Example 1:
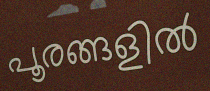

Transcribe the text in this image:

പൂരങ്ങളിൽ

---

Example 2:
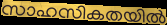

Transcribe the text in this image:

സാഹസികതയിൽ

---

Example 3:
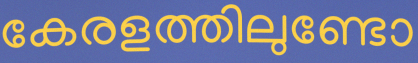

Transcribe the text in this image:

കേരളത്തിലുണ്ടോ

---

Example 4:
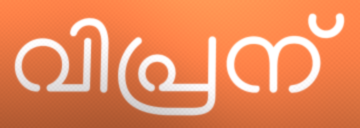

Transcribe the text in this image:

വിപ്രന്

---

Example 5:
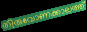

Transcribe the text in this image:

തിരുവോണക്കാലത്ത്